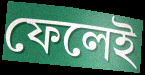
ফেলেই